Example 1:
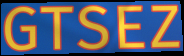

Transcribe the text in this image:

GTSEZ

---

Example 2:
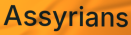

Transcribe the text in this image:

Assyrians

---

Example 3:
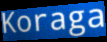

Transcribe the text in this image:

Koraga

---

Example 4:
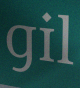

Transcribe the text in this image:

gil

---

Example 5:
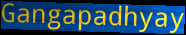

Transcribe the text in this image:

Gangapadhyay